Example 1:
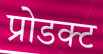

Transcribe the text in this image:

प्रोडक्ट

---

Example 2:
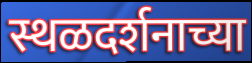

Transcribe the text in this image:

स्थळदर्शनाच्या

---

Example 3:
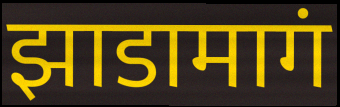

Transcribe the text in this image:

झाडामागं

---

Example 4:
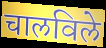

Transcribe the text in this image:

चालविले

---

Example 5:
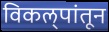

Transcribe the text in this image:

विकल्पांतून